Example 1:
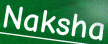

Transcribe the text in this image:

Naksha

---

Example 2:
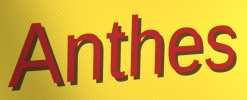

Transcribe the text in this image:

Anthes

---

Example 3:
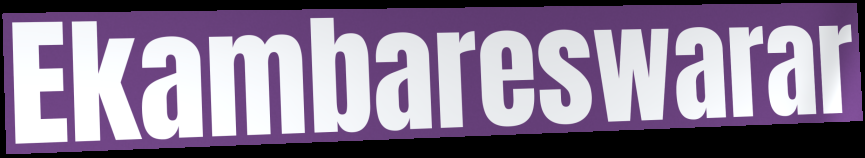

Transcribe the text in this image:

Ekambareswarar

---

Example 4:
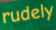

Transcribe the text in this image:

rudely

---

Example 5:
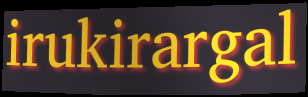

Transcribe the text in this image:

irukirargal